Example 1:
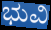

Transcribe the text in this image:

ಭುವಿ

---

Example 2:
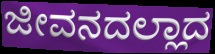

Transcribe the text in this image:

ಜೀವನದಲ್ಲಾದ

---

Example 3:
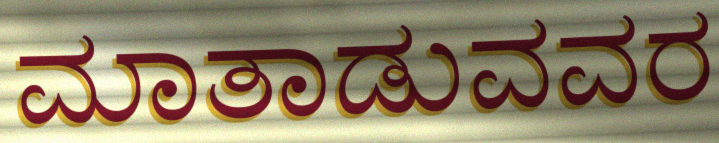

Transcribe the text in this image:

ಮಾತಾಡುವವರ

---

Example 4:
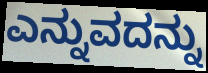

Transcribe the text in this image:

ಎನ್ನುವದನ್ನು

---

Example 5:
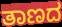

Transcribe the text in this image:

ತಾಣದ